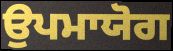
ਉਪਮਾਯੋਗ